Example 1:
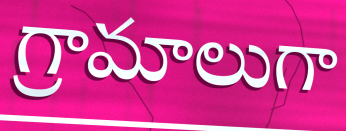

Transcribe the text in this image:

గ్రామాలుగా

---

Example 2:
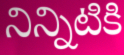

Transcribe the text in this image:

నిన్నిటికి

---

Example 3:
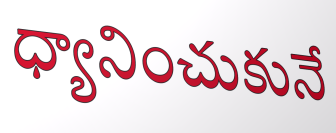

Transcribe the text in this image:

ధ్యానించుకునే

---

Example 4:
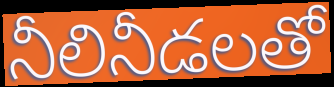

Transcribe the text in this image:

నీలినీడలతో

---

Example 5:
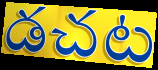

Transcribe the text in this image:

డచట